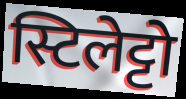
स्टिलेट्टो